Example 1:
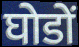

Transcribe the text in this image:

घोडों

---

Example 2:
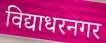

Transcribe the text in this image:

विद्याधरनगर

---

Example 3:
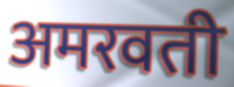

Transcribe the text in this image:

अमरवती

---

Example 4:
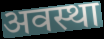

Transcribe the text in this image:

अवस्‍था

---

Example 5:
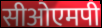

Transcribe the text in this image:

सीओएमपी